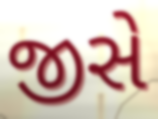
જીસે